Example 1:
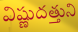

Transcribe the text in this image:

విష్ణుదత్తుని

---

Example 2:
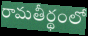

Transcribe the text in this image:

రామతీర్థంలో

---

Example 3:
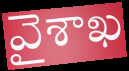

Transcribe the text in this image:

వైశాఖ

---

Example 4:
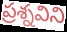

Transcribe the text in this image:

ప్రశ్నవిని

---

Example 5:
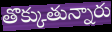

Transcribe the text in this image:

తొక్కుతున్నారు